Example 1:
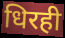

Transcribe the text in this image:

धिरही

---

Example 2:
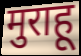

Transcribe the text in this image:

मुराहू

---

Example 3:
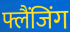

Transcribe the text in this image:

फ्लैंजिंग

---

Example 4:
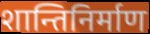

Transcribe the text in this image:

शान्तिनिर्माण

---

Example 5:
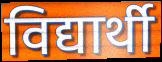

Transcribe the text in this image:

विद्यार्थी